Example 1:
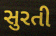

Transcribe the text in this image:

સુરતી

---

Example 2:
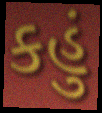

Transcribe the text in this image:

કહું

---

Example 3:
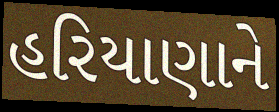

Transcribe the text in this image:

હરિયાણાને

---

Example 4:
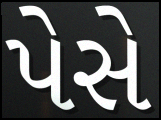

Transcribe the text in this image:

પેસે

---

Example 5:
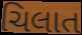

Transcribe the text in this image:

ચિલાત